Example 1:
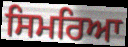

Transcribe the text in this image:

ਸਿਮਰਿਆ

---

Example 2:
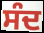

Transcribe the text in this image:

ਸੰਦ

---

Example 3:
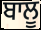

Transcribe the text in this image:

ਬਾਲੂ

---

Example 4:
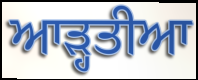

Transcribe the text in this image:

ਆੜ੍ਹਤੀਆ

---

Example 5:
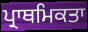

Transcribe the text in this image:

ਪ੍ਰਾਥਮਿਕਤਾ